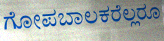
ಗೋಪಬಾಲಕರೆಲ್ಲರೂ